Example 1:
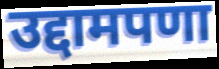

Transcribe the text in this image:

उद्दामपणा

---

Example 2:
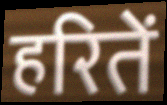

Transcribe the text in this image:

हरितें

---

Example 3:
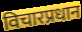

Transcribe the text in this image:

विचारप्रधान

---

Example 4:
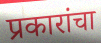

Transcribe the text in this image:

प्रकारांचा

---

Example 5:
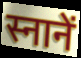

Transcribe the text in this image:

स्नानें